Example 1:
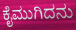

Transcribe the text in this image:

ಕೈಮುಗಿದನು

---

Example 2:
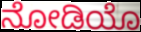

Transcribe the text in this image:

ನೋಡಿಯೊ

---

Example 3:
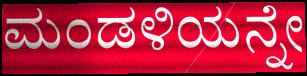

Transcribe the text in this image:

ಮಂಡಳಿಯನ್ನೇ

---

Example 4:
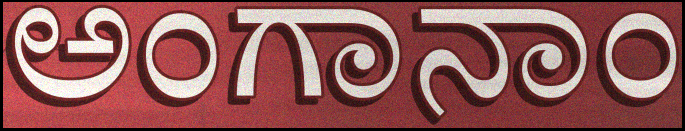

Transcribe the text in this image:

ಅಂಗಾನಾಂ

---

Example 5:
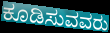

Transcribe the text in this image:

ಕೂಡಿಸುವವರು